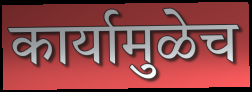
कार्यामुळेच